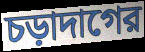
চড়াদাগের